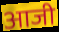
आजी